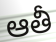
ఆతీ